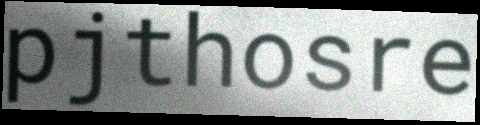
pjthosre